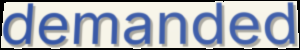
demanded